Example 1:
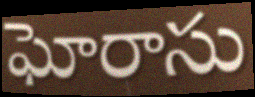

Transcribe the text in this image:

ఘోరాసు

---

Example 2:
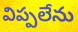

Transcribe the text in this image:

విప్పలేను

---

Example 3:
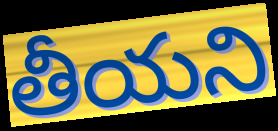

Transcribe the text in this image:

తీయని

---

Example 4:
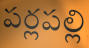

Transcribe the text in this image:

పర్లపల్లి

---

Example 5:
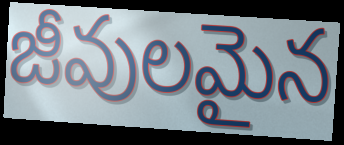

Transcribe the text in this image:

జీవులమైన